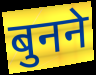
बुनने